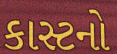
કાસ્ટનો